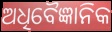
ଅଧିବୈଜ୍ଞାନିକ